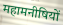
महामनीषियों